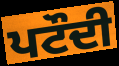
ਪਟੌਦੀ